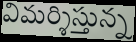
విమర్శిస్తున్న